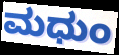
ಮಧುಂ